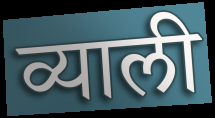
व्याली